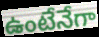
ఉంటేనేగా